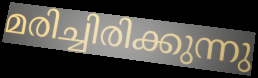
മരിച്ചിരിക്കുന്നു